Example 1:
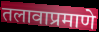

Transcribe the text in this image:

तलावाप्रमाणे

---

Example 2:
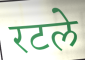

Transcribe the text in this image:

रटले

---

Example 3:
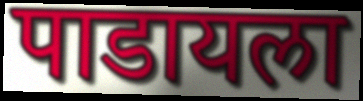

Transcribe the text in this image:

पाडायला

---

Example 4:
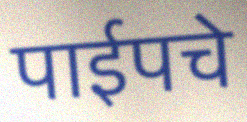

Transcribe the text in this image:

पाईपचे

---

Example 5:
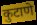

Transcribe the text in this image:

कुटाणे